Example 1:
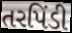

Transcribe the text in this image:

તરપિંડી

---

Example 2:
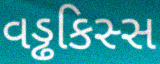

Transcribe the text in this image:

વડ્ઢકિસ્સ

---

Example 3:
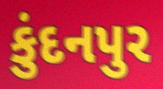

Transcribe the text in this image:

કુંદનપુર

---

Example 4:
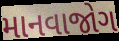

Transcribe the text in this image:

માનવાજોગ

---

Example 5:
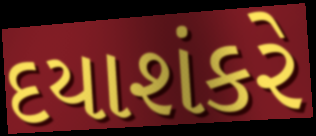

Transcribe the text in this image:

દયાશંકરે